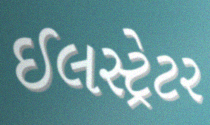
ઈલસ્ટ્રેટર